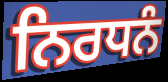
ਨਿਰਧਨੰ